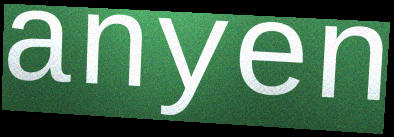
anyen